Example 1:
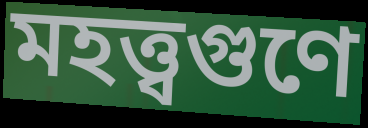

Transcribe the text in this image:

মহত্ত্বগুণে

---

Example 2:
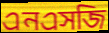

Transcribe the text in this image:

এনএসজি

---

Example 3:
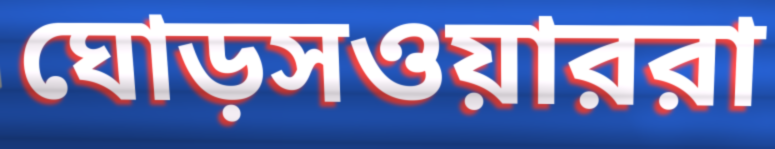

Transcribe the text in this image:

ঘোড়সওয়াররা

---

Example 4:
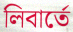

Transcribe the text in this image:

লিবার্তে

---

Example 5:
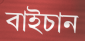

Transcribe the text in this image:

বাইচান